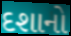
દશાનો